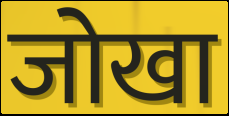
जोखा